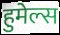
हुमेल्स